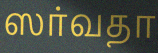
ஸர்வதா